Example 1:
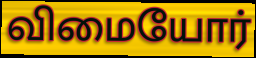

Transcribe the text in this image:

விமையோர்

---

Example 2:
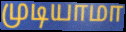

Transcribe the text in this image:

முடியாமா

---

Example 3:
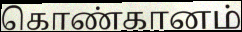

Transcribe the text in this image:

கொண்கானம்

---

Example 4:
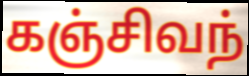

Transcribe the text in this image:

கஞ்சிவந்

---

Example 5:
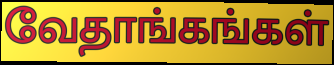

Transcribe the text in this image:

வேதாங்கங்கள்